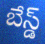
బేస్డ్